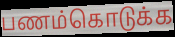
பணம்கொடுக்க